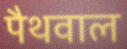
पैथवाल